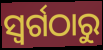
ସ୍ଵର୍ଗଠାରୁ